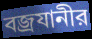
বজ্রযানীর